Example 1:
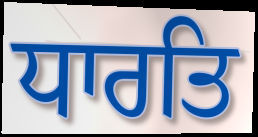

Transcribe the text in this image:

ਧਾਰਤਿ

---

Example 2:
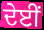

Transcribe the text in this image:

ਦੇਈਂ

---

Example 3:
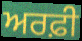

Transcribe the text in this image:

ਅਰਫ਼ੀ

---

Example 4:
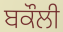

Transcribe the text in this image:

ਬਕੌਲੀ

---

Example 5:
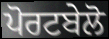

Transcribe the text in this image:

ਪੋਰਟਬੇਲੋ